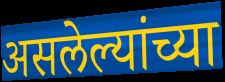
असलेल्यांच्या